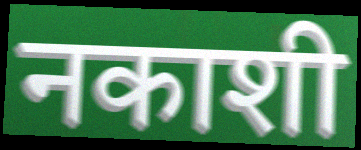
नकाशी